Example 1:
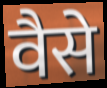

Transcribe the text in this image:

वैसे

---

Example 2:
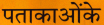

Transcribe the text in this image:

पताकाओंके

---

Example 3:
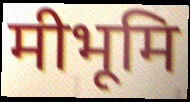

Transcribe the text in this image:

मीभूमि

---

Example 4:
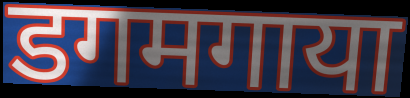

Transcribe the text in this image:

डगमगाया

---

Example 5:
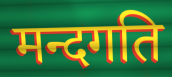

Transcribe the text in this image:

मन्दगति